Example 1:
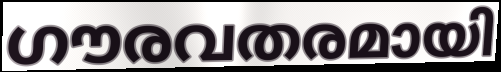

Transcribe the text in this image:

ഗൗരവതരമായി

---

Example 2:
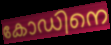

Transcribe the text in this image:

കോഡിനെ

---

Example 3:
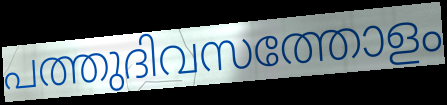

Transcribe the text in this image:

പത്തുദിവസത്തോളം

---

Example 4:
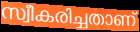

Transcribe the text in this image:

സ്വീകരിച്ചതാണ്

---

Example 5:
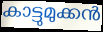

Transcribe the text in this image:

കാട്ടുമുക്കൻ